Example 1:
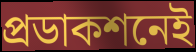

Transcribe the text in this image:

প্রডাকশনেই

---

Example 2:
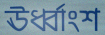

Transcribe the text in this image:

ঊর্ধ্বাংশ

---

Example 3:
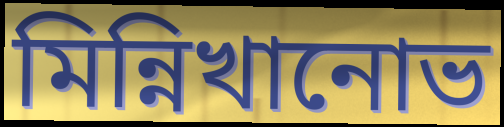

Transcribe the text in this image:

মিন্নিখানোভ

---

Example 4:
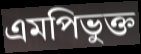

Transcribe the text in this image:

এমপিভুক্ত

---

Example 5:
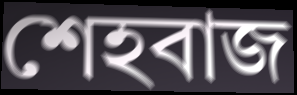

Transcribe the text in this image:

শেহবাজ